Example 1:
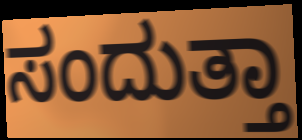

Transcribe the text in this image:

ಸಂದುತ್ತಾ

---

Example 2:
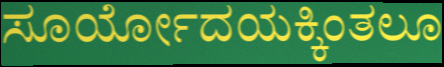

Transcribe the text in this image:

ಸೂರ್ಯೋದಯಕ್ಕಿಂತಲೂ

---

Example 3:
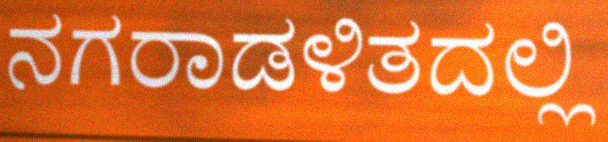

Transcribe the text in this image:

ನಗರಾಡಳಿತದಲ್ಲಿ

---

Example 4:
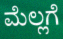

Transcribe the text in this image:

ಮೆಲ್ಲಗೆ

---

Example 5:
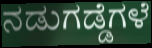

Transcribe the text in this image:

ನಡುಗಡ್ಡೆಗಳೆ